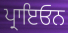
ਪ੍ਰਾਇਓਨ